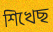
শিখেছ